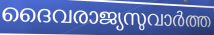
ദൈവരാജ്യസുവാർത്ത